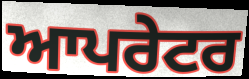
ਆਪਰੇਟਰ